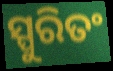
ସ୍ପୁରିତଂ